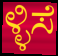
ಳ್ಳಿಸೆ